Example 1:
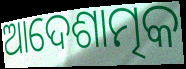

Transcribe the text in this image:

ଆଦେଶାତ୍ମକ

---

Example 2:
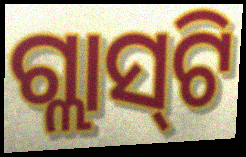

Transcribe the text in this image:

ଗ୍ଲାସ୍‍ଟି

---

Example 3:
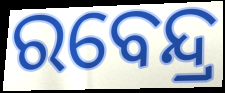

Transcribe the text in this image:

ରବେନ୍ଦ୍ର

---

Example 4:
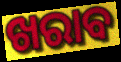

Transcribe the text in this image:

ଖରାବ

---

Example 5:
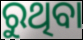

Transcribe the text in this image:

ରୁଥିବା